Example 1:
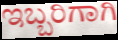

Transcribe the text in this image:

ಇಬ್ಬರಿಗಾಗಿ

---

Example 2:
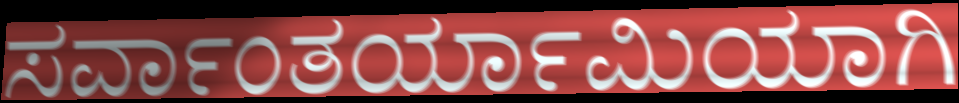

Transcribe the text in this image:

ಸರ್ವಾಂತರ್ಯಾಮಿಯಾಗಿ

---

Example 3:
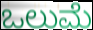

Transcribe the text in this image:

ಒಲುಮೆ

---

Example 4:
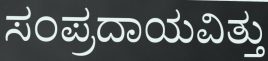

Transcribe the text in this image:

ಸಂಪ್ರದಾಯವಿತ್ತು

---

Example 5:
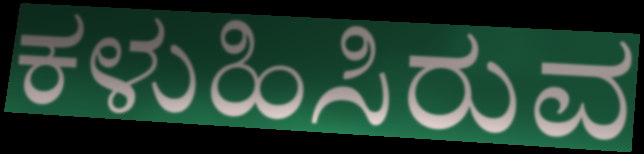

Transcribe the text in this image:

ಕಳುಹಿಸಿರುವ